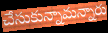
చేసుకున్నామన్నారు